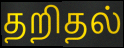
தறிதல்